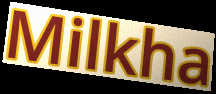
Milkha